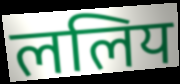
ललिय